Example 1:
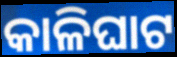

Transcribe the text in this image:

କାଳିଘାଟ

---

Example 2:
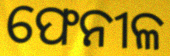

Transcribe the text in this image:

ଫେନୀଳ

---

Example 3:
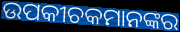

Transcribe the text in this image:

ଉପକୀଚକମାନଙ୍କର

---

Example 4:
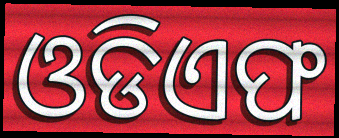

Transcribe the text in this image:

ଓଡିଏଫ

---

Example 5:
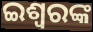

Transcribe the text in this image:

ଇଶ୍ୱରଙ୍କ